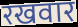
रखवार